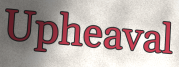
Upheaval